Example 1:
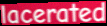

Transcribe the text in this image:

lacerated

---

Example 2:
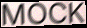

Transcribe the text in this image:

MOCK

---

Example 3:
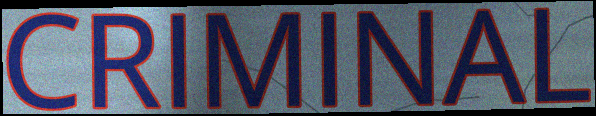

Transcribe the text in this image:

CRIMINAL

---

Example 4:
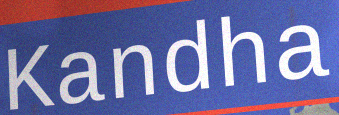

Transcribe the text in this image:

Kandha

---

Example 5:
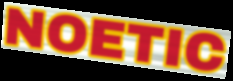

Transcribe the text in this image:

NOETIC